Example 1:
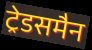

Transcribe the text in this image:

ट्रेडसमैन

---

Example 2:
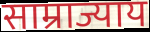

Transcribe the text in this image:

साम्राज्याय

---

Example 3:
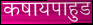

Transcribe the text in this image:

कषायपाहुड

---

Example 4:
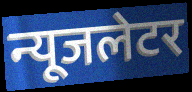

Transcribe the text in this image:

न्यूजलेटर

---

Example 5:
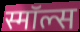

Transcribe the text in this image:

स्मॉल्स